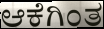
ಆಕೆಗಿಂತ